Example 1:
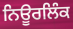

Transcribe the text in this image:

ਨਿਊਰਲਿੰਕ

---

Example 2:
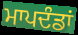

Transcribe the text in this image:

ਮਾਪਦੰਡਾਂ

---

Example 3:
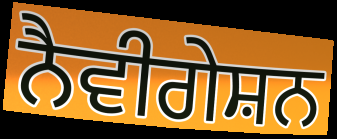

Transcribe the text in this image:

ਨੈਵੀਗੇਸ਼ਨ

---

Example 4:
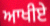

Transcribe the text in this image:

ਆਖੀਏ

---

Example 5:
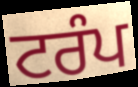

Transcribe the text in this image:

ਟਰੰਪ